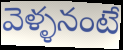
వెళ్ళనంటే